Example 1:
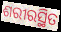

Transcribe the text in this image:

ଶରୀରସ୍ଥିତ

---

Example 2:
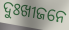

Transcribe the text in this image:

ଦୁଃଖୀଜନେ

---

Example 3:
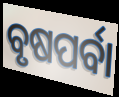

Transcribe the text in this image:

ବୃଷପର୍ବା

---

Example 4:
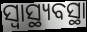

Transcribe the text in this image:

ସ୍ୱାସ୍ଥ୍ୟବସ୍ଥା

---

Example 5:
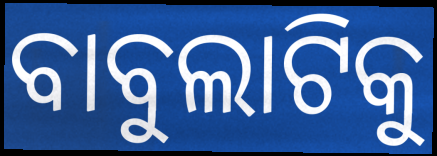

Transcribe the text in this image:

ବାବୁଲାଟିକୁ